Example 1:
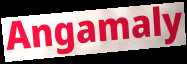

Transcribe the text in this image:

Angamaly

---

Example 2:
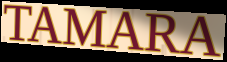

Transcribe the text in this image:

TAMARA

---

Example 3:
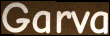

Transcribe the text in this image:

Garva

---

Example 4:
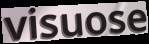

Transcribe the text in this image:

visuose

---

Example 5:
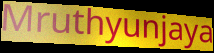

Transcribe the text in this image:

Mruthyunjaya